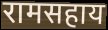
रामसहाय